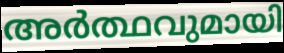
അർത്ഥവുമായി